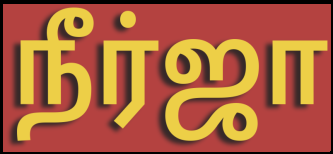
நீர்ஜா